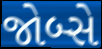
જોબ્સે